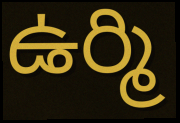
ఉర్మి